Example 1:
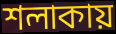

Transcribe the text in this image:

শলাকায়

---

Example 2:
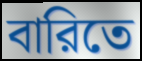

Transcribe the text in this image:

বারিতে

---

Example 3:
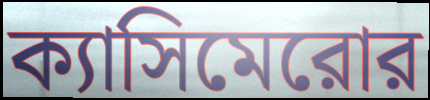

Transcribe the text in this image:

ক্যাসিমেরোর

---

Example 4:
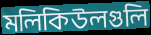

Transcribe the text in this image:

মলিকিউলগুলি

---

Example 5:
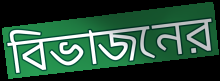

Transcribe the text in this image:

বিভাজনের